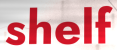
shelf